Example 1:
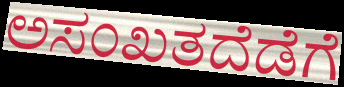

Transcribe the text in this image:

ಅಸಂಖತದೆಡೆಗೆ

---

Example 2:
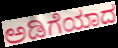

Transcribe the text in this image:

ಅಡಿಗೆಯಾದ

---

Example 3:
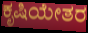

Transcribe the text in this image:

ಕೃಷಿಯೇತರ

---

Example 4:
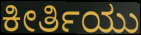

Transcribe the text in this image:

ಕೀರ್ತಿಯು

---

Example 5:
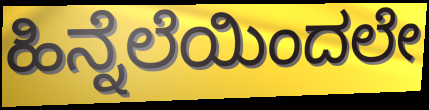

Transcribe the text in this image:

ಹಿನ್ನೆಲೆಯಿಂದಲೇ